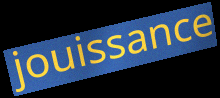
jouissance